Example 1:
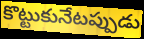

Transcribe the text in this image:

కొట్టుకునేటప్పుడు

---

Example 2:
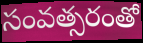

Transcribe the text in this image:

సంవత్సరంతో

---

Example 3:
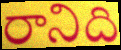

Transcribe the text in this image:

రానిది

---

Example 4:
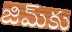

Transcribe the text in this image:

జిమ్‌కు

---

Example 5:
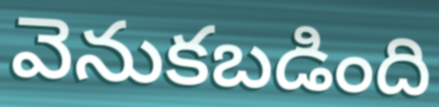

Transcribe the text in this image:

వెనుకబడింది